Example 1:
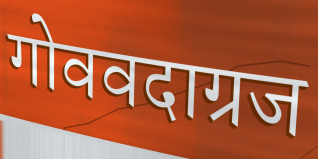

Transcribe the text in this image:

गोववदाग्रज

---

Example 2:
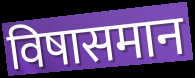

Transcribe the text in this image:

विषासमान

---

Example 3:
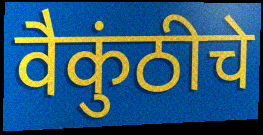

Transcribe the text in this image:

वैकुंठीचे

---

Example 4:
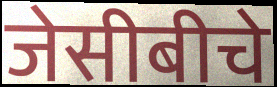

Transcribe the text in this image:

जेसीबीचे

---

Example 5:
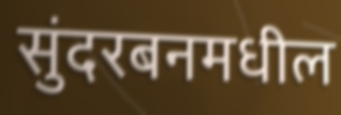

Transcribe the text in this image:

सुंदरबनमधील